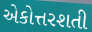
એકોત્તરશતી